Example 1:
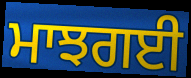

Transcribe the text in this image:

ਮਾਝਗਈ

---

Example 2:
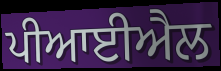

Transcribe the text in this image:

ਪੀਆਈਐਲ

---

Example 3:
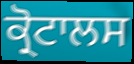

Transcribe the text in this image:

ਕ੍ਰੋਟਾਲਸ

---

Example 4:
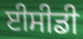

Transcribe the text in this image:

ਈਸੀਡੀ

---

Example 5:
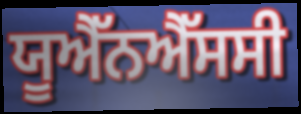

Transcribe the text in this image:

ਯੂਐੱਨਐੱਸਸੀ